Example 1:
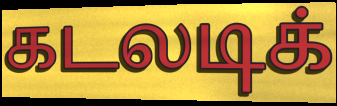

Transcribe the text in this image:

கடலடிக்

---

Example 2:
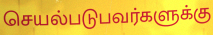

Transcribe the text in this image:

செயல்படுபவர்களுக்கு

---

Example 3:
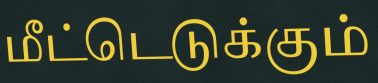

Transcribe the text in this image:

மீட்டெடுக்கும்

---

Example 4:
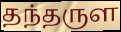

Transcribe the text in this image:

தந்தருள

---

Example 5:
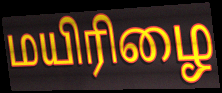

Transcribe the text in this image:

மயிரிழை